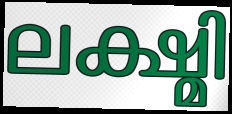
ലക്ഷ്മി